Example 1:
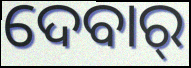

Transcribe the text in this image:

ଦେବାର୍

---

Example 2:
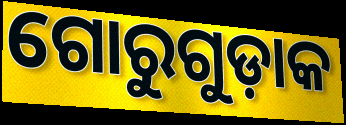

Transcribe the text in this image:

ଗୋରୁଗୁଡ଼ାକ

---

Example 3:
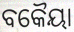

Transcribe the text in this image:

ବକୈୟା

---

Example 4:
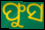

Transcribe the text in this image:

ଫୁସ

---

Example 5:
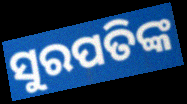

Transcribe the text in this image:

ସୁରପତିଙ୍କ